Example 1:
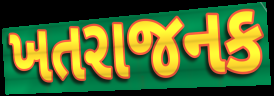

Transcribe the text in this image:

ખતરાજનક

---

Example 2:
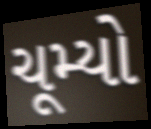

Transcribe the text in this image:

ચૂમ્યો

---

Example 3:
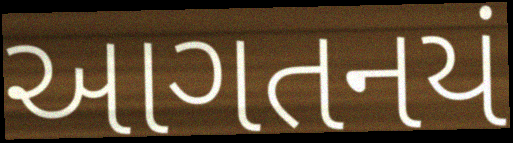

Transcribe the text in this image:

આગતનયં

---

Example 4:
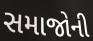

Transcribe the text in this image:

સમાજોની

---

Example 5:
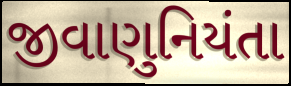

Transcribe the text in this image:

જીવાણુનિયંતા